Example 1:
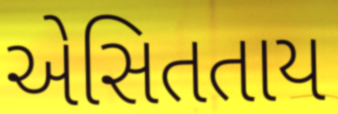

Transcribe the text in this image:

એસિતતાય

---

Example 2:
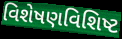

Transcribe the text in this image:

વિશેષણવિશિષ્ટ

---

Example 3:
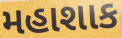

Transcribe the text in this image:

મહાશાક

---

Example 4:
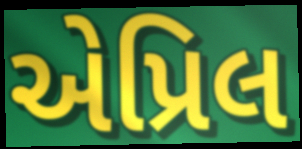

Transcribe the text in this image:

એપ્રિલ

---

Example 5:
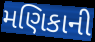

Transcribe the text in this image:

મણિકાની